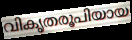
വികൃതരൂപിയായ